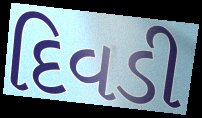
દિવડી